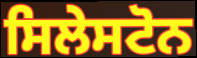
ਸਿਲੇਸਟੋਨ